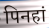
पिनहां